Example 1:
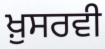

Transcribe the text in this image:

ਖ਼ੁਸਰਵੀ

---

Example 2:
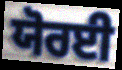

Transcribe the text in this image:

ਯੋਰਈ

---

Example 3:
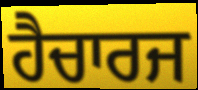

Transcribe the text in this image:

ਹੈਚਾਰਜ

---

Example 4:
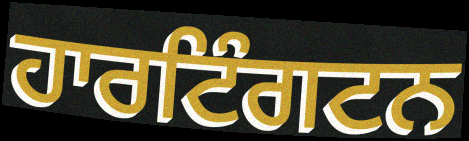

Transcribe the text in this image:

ਹਾਰਟਿੰਗਟਨ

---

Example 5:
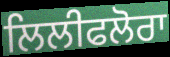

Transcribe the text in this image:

ਲਿਲੀਫਲੋਰਾ